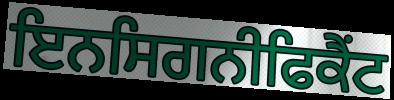
ਇਨਸਿਗਨੀਫਿਕੈਂਟ